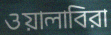
ওয়ালাবিরা